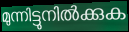
മുന്നിട്ടുനിൽക്കുക